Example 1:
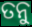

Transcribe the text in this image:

ତନୁ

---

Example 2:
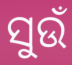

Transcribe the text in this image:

ସୁଉଁ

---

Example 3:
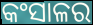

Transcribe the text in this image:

କଂସାଳର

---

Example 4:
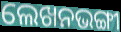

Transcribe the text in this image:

ଲେଖନଭଙ୍ଗୀ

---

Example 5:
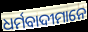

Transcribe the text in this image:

ଧର୍ମବାଦୀମାନେ